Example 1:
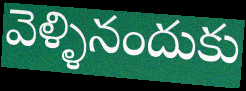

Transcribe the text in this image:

వెళ్ళినందుకు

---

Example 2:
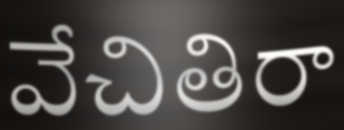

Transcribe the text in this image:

వేచితిరా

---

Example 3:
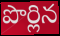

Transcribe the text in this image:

పొర్లిన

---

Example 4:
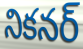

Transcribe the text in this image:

నికనర్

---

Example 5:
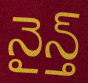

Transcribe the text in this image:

నైన్త్